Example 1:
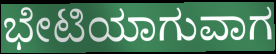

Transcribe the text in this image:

ಭೇಟಿಯಾಗುವಾಗ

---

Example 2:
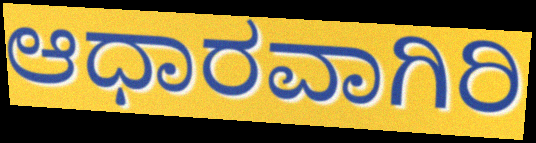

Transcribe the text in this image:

ಆಧಾರವಾಗಿರಿ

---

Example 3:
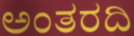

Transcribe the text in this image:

ಅಂತರದಿ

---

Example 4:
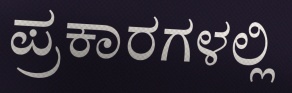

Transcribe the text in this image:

ಪ್ರಕಾರಗಳಲ್ಲಿ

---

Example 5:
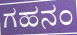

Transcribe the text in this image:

ಗಹನಂ